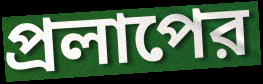
প্রলাপের